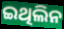
ଇଥିଲିନ